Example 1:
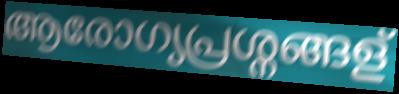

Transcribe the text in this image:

ആരോഗ്യപ്രശ്നങ്ങള്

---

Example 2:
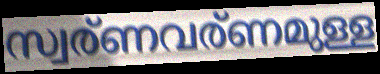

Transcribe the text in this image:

സ്വര്ണവര്ണമുള്ള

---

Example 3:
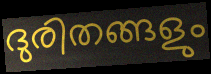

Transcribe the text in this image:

ദുരിതങ്ങളും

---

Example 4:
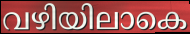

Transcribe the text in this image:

വഴിയിലാകെ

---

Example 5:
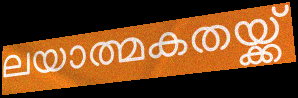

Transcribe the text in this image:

ലയാത്മകതയ്ക്ക്